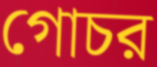
গোচর